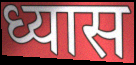
ध्यास